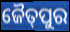
ଜୈତ୍‌ପୁର